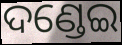
ଦଣ୍ଡେଇ